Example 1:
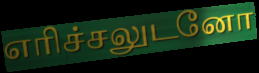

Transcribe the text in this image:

எரிச்சலுடனோ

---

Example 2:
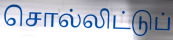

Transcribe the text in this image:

சொல்லிட்டுப்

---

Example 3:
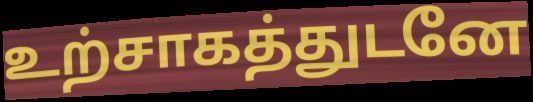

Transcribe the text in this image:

உற்சாகத்துடனே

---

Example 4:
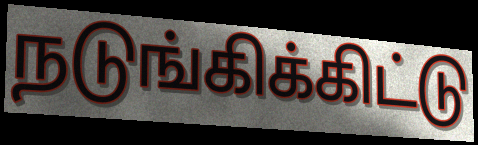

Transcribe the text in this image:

நடுங்கிக்கிட்டு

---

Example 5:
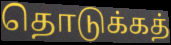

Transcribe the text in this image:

தொடுக்கத்